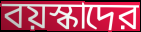
বয়স্কাদের